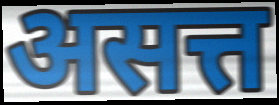
असत्त